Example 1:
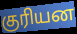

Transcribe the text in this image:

குரியன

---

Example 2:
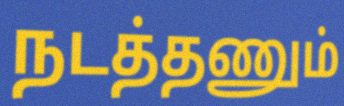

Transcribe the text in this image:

நடத்தணும்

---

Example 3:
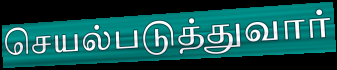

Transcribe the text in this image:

செயல்படுத்துவார்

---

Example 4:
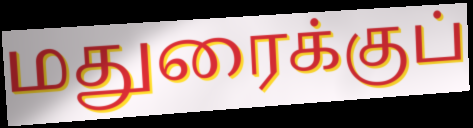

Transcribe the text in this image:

மதுரைக்குப்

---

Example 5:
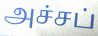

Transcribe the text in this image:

அச்சப்